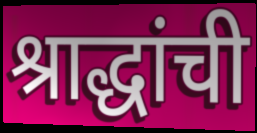
श्राद्धांची